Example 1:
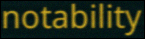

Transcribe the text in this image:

notability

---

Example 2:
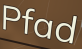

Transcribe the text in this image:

Pfad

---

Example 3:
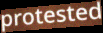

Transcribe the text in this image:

protested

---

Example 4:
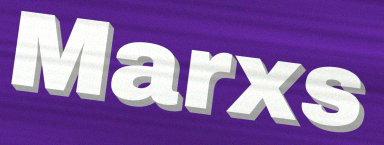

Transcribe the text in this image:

Marxs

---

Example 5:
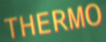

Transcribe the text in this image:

THERMO